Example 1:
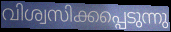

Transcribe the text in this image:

വിശ്വസിക്കപ്പെടുന്നു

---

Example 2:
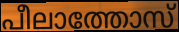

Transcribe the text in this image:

പീലാത്തോസ്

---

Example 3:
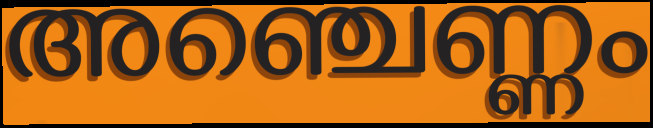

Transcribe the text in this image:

അഞ്ചെണ്ണം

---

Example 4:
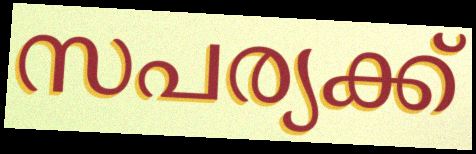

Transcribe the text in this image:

സപര്യക്ക്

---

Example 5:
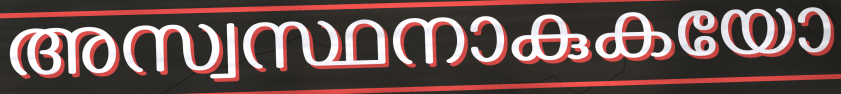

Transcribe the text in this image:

അസ്വസ്ഥനാകുകയോ